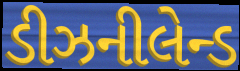
ડીઝનીલેન્ડ